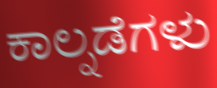
ಕಾಲ್ನಡೆಗಳು